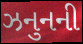
ઝનુનની